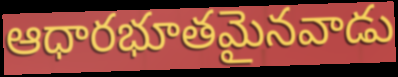
ఆధారభూతమైనవాడు